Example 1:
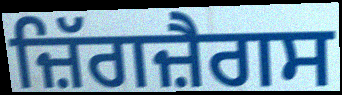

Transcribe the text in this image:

ਜ਼ਿੱਗਜ਼ੈਗਸ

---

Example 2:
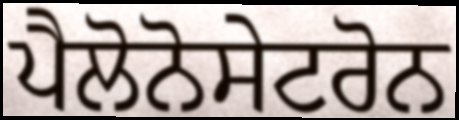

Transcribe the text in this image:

ਪੈਲੋਨੋਸੇਟਰੋਨ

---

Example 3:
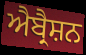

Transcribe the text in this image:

ਐਬ੍ਰੈਸ਼ਨ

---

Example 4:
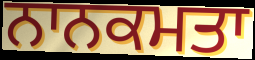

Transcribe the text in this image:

ਨਾਨਕਮਤਾ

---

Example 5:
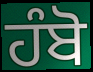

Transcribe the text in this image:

ਹੰਬੋ